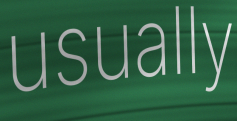
usually